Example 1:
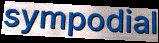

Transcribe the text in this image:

sympodial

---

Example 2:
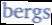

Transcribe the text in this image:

bergs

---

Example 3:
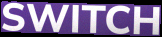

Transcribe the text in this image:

SWITCH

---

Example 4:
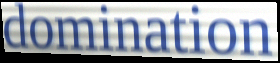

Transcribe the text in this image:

domination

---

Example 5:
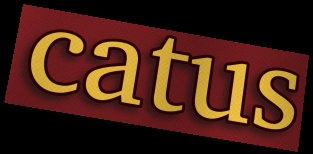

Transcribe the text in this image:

catus